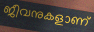
ജീവനുകളാണ്